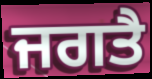
ਜਗਤੈ